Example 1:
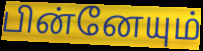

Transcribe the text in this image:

பின்னேயும்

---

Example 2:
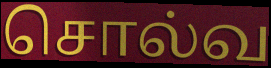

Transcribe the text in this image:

சொல்வ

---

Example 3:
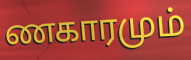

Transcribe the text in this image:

ணகாரமும்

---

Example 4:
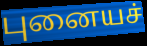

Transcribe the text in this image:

புனையச்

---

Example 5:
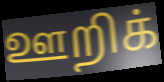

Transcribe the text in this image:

ஊறிக்